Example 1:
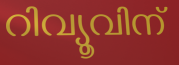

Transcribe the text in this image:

റിവ്യൂവിന്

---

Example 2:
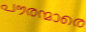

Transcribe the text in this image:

പൗരന്മാരെ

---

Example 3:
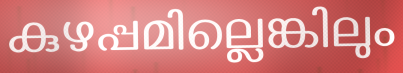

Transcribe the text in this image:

കുഴപ്പമില്ലെങ്കിലും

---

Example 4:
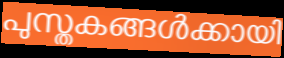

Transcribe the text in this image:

പുസ്തകങ്ങൾക്കായി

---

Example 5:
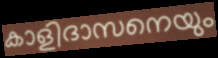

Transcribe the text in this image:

കാളിദാസനെയും